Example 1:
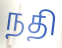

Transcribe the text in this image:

நதி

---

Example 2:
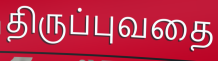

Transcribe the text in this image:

திருப்புவதை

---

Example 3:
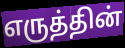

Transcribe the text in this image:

எருத்தின்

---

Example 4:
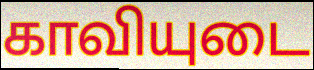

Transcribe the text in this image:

காவியுடை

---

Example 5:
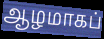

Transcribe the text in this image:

ஆழமாகப்